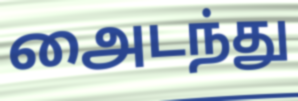
அைடந்து